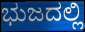
ಭುಜದಲ್ಲಿ